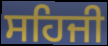
ਸਹਿਜੀ